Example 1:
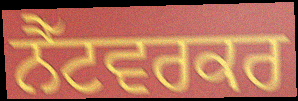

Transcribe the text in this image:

ਨੈੱਟਵਰਕਰ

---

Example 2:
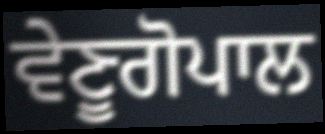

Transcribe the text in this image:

ਵੇਣੂਗੋਪਾਲ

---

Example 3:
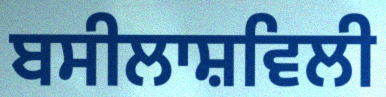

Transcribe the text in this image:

ਬਸੀਲਾਸ਼ਵਿਲੀ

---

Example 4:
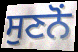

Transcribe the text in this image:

ਸੁਣਨੋਂ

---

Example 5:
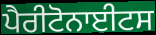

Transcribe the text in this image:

ਪੈਰੀਟੋਨਾਈਟਸ